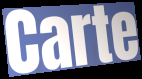
Carte